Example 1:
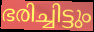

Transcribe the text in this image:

ഭരിച്ചിട്ടും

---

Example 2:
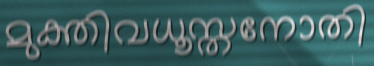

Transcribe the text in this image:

മുക്തിവധൂസ്തനോതി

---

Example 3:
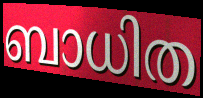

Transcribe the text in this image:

ബാധിത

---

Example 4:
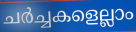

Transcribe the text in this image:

ചർച്ചകളെല്ലാം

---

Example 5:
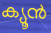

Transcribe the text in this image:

ക്യൂൻ